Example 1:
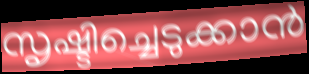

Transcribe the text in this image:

സൃഷ്ടിച്ചെടുക്കാൻ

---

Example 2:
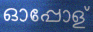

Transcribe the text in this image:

ഓപ്പോള്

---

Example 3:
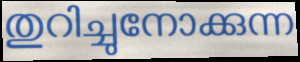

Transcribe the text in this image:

തുറിച്ചുനോക്കുന്ന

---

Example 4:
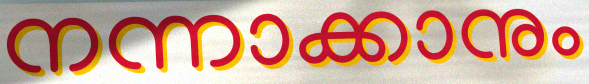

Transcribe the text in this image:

നന്നാക്കാനും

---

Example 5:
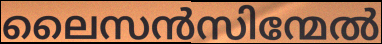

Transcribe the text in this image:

ലൈസൻസിന്മേൽ